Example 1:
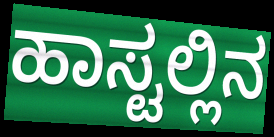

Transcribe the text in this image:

ಹಾಸ್ಟಲ್ಲಿನ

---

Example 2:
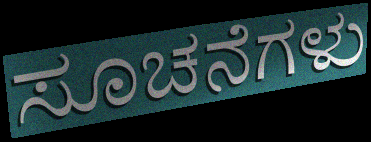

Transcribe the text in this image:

ಸೂಚನೆಗಳು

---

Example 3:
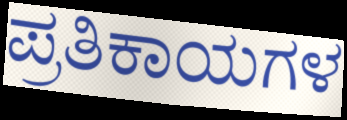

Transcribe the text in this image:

ಪ್ರತಿಕಾಯಗಳ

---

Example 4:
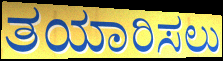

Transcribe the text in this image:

ತಯಾರಿಸಲು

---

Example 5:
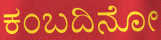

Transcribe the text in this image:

ಕಂಬದಿನೋ